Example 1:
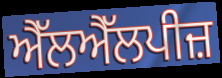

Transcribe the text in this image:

ਐੱਲਐੱਲਪੀਜ਼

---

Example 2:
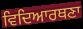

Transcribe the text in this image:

ਵਿਦਿਆਰਥਣਾ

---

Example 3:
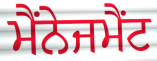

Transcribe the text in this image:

ਮੈਂਨੇਜਮੈਂਟ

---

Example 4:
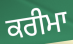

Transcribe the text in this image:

ਕਰੀਮਾ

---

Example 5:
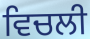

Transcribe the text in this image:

ਵਿਚਲੀ